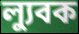
ল্যুবক